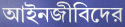
আইনজীবিদের